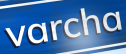
varcha